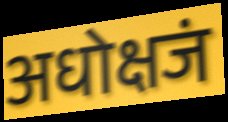
अधोक्षजं